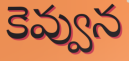
కెవ్వున